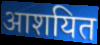
आशयित